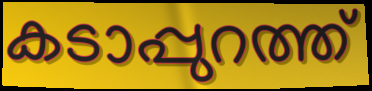
കടാപ്പുറത്ത്